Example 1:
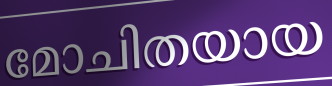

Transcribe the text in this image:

മോചിതയായ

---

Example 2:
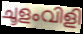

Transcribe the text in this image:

ചൂളംവിളി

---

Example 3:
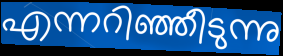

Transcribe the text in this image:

എന്നറിഞ്ഞീടുന്നു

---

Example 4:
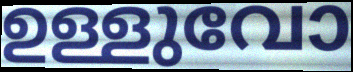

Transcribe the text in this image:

ഉള്ളുവോ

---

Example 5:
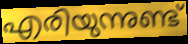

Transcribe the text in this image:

എരിയുന്നുണ്ട്